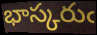
భాస్కరుఁ